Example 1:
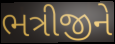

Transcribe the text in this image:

ભત્રીજીને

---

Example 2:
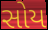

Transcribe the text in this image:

સોય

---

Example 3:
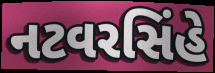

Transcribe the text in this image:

નટવરસિંહે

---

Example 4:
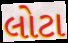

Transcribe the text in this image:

લોટા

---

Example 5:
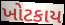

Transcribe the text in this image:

ખોટકાય